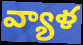
వ్యాళ